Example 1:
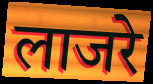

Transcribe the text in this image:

लाजरे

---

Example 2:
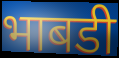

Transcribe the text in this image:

भाबडी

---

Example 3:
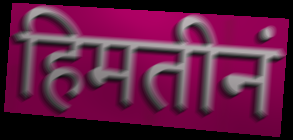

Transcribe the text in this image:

हिमतीनं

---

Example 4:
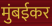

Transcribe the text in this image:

मुंबईकर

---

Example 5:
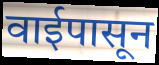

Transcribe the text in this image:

वाईपासून